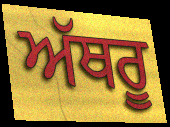
ਅੱਥਰੂ